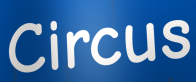
Circus